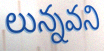
లున్నవని